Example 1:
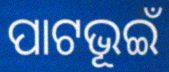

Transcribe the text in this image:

ପାଟଭୂଇଁ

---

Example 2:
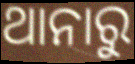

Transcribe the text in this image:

ଥାନାରୁ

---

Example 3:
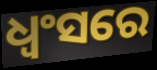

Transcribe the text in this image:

ଧ୍ୱଂସରେ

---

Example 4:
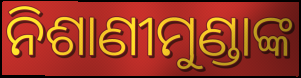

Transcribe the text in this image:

ନିଶାଣୀମୁଣ୍ଡାଙ୍କ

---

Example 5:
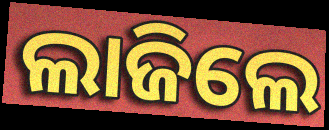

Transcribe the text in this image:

ଲାଜିଲେ